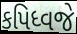
કપિધ્વજે